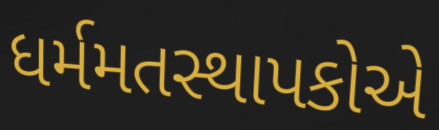
ધર્મમતસ્થાપકોએ